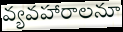
వ్యవహారాలనూ